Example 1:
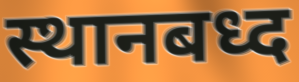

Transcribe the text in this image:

स्थानबध्द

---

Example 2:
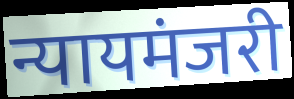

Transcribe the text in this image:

न्यायमंजरी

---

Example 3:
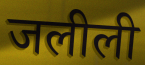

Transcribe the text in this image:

जलीली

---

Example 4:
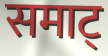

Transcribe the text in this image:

समाट्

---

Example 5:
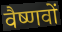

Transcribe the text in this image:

वैष्णवों